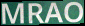
MRAO